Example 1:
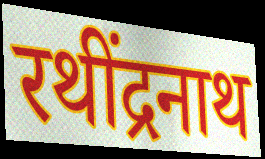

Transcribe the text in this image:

रथींद्रनाथ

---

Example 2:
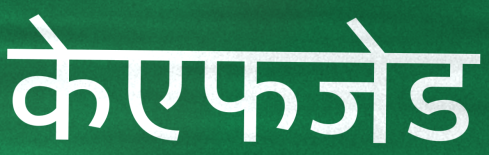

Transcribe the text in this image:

केएफजेड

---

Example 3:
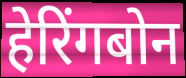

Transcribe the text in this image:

हेरिंगबोन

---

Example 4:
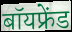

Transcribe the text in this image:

बॉयफ्रेंड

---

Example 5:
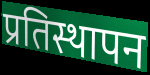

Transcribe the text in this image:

प्रतिस्थापन